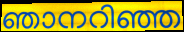
ഞാനറിഞ്ഞ